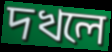
দখলে